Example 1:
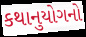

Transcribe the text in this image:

કથાનુયોગનો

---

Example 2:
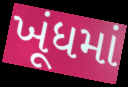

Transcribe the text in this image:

ખૂંધમાં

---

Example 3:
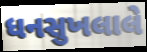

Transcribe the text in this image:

ધનસુખલાલે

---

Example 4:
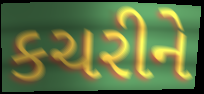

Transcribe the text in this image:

કચરીને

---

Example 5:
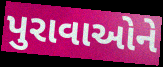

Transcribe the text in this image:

પુરાવાઓને